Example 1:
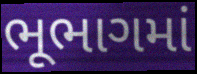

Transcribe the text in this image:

ભૂભાગમાં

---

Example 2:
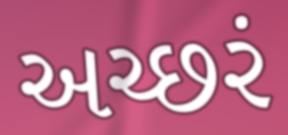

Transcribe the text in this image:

અચ્છરં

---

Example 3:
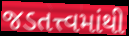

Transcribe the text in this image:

જડતત્ત્વમાંથી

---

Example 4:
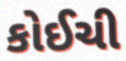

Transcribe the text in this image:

કોઈચી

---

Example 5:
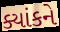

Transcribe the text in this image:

ક્યાંકને